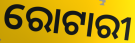
ରୋଟାରୀ